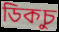
ডিকচু